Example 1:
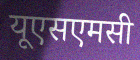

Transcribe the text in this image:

यूएसएमसी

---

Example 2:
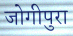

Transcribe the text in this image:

जोगीपुरा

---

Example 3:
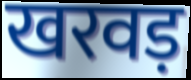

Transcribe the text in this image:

खरवड़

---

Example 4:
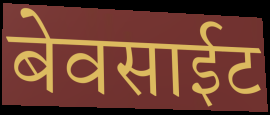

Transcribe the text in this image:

बेवसाईट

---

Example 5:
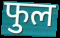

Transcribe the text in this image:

फुल